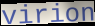
virion